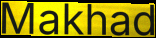
Makhad